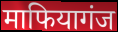
माफियागंज